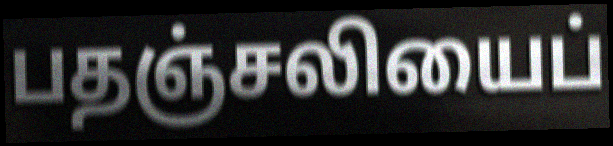
பதஞ்சலியைப்